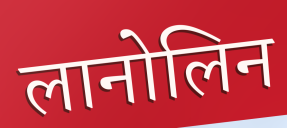
लानोलिन